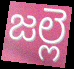
జల్లె